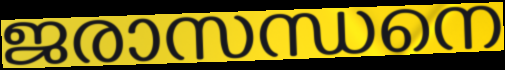
ജരാസന്ധനെ